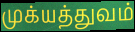
முக்யத்துவம்